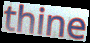
thine